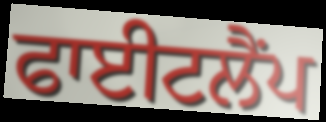
ਫਾਈਟਲੈਂਪ